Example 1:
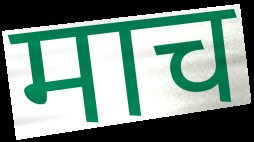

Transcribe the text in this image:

माच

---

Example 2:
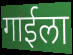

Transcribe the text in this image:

गाईला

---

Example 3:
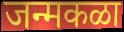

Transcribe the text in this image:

जन्मकळा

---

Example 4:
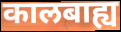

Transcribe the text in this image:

कालबाह्य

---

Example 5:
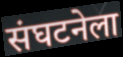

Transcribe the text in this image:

संघटनेला